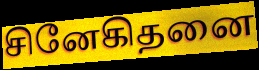
சினேகிதனை